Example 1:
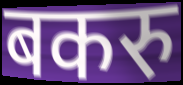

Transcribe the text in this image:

बकरु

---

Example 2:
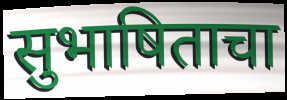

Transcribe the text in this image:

सुभाषिताचा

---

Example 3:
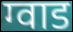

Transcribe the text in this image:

ग्वाड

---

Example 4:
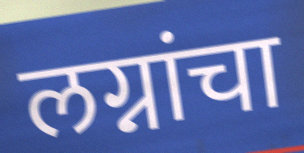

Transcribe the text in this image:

लग्नांचा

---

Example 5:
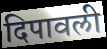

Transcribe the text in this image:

दिपावली